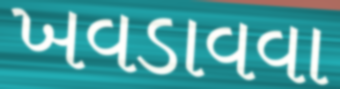
ખવડાવવા